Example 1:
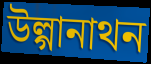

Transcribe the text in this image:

উল্গানাথন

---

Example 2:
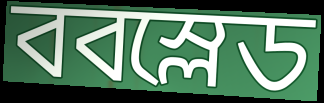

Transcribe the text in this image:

ববস্লেড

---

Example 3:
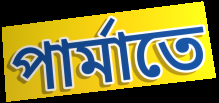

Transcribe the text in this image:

পার্মাতে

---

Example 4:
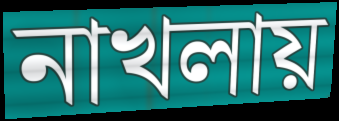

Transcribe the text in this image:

নাখলায়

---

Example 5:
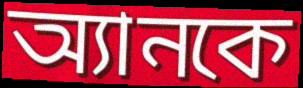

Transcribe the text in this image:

অ্যানকে